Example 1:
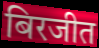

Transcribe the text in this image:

बिरजीत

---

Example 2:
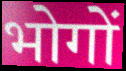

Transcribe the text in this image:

भोगों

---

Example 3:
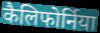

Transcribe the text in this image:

कैलिफोर्निया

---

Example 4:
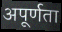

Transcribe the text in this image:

अपूर्णता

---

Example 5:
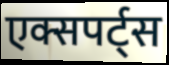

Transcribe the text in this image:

एक्सपर्ट्स